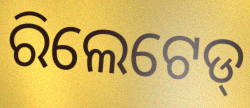
ରିଲେଟେଡ୍